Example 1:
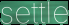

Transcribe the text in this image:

settle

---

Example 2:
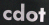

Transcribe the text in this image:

cdot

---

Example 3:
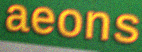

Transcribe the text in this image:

aeons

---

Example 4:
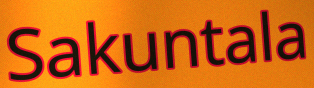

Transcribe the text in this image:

Sakuntala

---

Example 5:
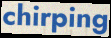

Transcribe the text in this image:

chirping